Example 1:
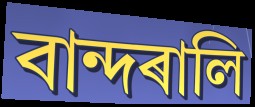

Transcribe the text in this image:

বান্দৰালি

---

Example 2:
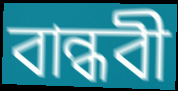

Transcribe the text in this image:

বান্ধবী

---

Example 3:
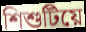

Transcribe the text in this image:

শিশুটিয়ে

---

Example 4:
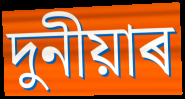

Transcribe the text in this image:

দুনীয়াৰ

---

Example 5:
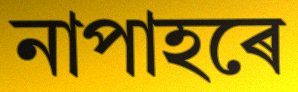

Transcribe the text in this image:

নাপাহৰে